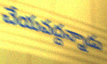
చేయవద్దన్నాడు